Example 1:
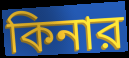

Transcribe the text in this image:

কিনার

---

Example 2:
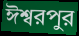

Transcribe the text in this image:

ঈশ্বরপুর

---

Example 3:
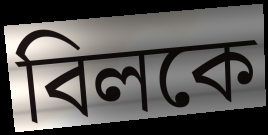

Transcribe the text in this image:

বিলকে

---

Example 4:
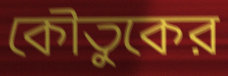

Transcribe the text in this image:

কৌতুকের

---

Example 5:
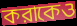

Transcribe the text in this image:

করাকেও